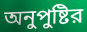
অনুপুষ্টির